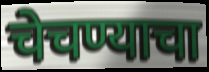
चेचण्याचा